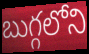
బుగ్గలోని